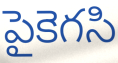
పైకెగసి